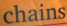
chains